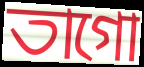
তাগো